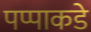
पप्पाकडे